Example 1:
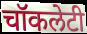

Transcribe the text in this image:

चॉकलेटी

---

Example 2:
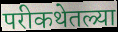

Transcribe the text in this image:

परीकथेतल्या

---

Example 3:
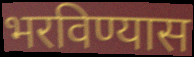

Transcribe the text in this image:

भरविण्यास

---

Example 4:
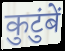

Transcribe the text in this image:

कुटुंबें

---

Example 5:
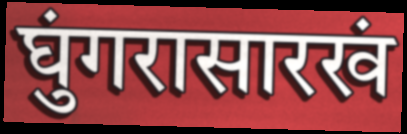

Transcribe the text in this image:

घुंगरासारखं